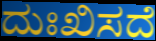
ದುಃಖಿಸದೆ